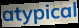
atypical